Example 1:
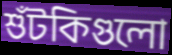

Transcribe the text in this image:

শুঁটকিগুলো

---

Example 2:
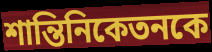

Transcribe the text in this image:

শান্তিনিকেতনকে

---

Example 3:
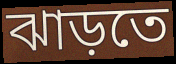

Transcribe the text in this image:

ঝাড়তে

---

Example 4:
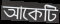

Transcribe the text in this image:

আকেটি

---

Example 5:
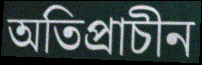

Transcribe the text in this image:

অতিপ্রাচীন